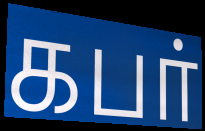
கபர்